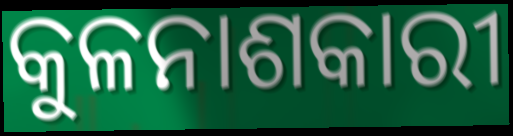
କୁଳନାଶକାରୀ